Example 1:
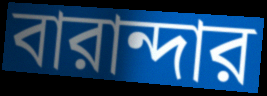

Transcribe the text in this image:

বারান্দার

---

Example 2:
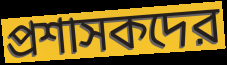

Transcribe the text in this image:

প্রশাসকদের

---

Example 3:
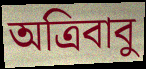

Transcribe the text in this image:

অত্রিবাবু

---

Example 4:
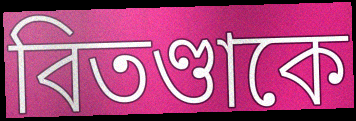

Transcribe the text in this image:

বিতণ্ডাকে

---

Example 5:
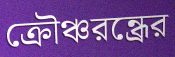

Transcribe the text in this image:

ক্রৌঞ্চরন্ধ্রের